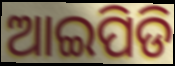
ଆଇପିଡି